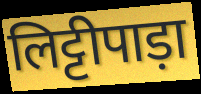
लिट्टीपाड़ा